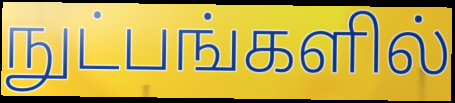
நுட்பங்களில்